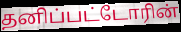
தனிப்பட்டோரின்